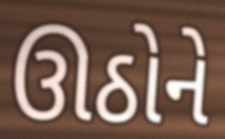
ઊઠોને